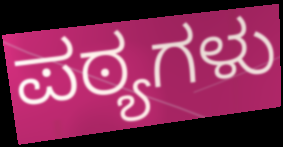
ಪಠ್ಯಗಳು